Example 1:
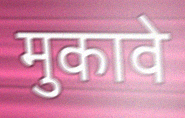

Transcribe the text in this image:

मुकावे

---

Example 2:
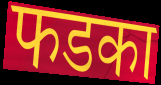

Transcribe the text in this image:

फडका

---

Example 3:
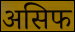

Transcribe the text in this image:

असिफ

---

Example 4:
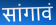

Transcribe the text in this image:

सांगावं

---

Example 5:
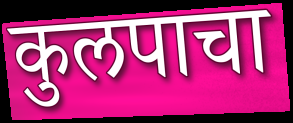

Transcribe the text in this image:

कुलपाचा